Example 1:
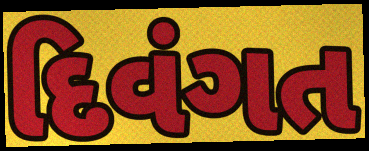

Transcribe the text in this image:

દિવંગત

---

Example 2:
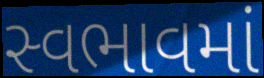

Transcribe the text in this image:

સ્વભાવમાં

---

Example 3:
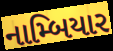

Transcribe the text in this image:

નામ્બિયાર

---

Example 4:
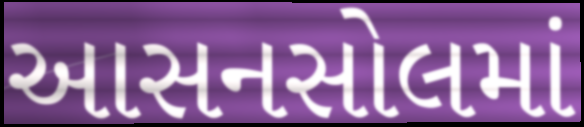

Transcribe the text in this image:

આસનસોલમાં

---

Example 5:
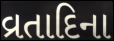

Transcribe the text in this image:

વ્રતાદિના